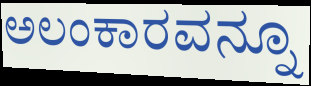
ಅಲಂಕಾರವನ್ನೂ